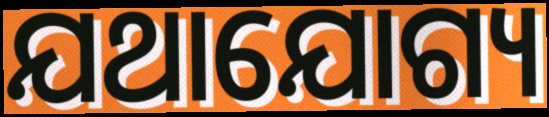
ଯଥାଯୋଗ୍ୟ